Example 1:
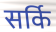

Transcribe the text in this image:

सर्कि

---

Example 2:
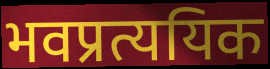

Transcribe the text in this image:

भवप्रत्ययिक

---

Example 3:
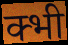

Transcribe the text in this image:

क्भी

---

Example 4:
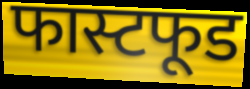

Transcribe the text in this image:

फास्‍टफूड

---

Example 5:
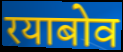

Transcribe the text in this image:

रयाबोव